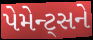
પેમેન્ટ્સને